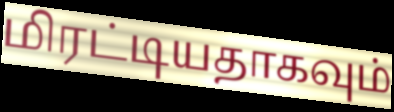
மிரட்டியதாகவும்